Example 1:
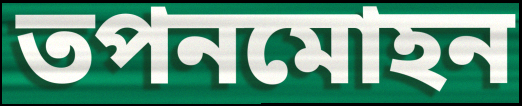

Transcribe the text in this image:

তপনমোহন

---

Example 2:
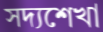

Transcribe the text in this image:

সদ্যশেখা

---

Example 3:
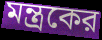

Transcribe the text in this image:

মন্ত্রকের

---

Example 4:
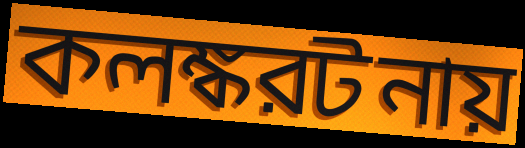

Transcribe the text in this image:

কলঙ্করটনায়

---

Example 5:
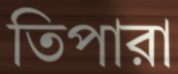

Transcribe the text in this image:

তিপারা